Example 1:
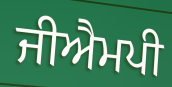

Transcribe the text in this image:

ਜੀਐਮਪੀ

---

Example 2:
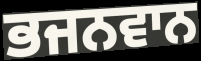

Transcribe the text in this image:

ਭਜਨਵਾਨ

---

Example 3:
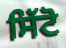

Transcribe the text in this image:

ਸਿੱਟੋ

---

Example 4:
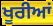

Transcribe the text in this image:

ਖੂਰੀਆਂ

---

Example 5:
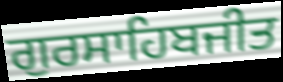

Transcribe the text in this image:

ਗੁਰਸਾਹਿਬਜੀਤ